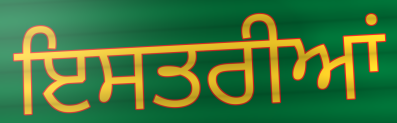
ਇਸਤਰੀਆਂ